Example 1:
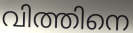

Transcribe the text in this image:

വിത്തിനെ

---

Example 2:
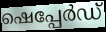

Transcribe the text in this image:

ഷെപ്പേർഡ്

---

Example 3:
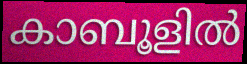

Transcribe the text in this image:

കാബൂളിൽ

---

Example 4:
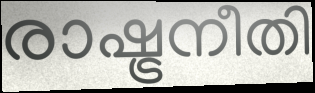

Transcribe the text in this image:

രാഷ്ട്രനീതി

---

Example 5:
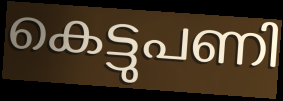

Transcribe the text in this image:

കെട്ടുപണി